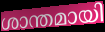
ശാന്തമായി